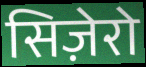
सिज़ेरो